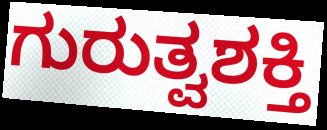
ಗುರುತ್ವಶಕ್ತಿ